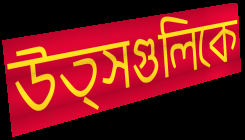
উত্সগুলিকে